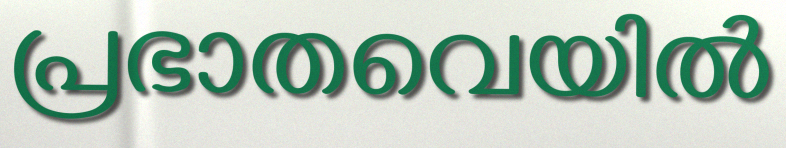
പ്രഭാതവെയിൽ